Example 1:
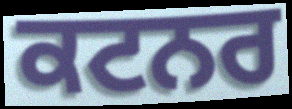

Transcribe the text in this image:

ਕਟਨਰ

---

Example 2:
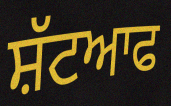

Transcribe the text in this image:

ਸ਼ੱਟਆਫ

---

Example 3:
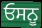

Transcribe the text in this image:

ਓਸਨੂ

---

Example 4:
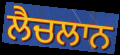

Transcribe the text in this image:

ਲੈਚਲਾਨ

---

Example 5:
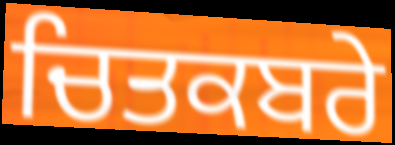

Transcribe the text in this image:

ਚਿਤਕਬਰੇ